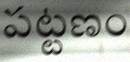
పట్టణం